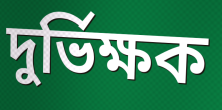
দুৰ্ভিক্ষক